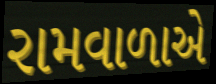
રામવાળાએ